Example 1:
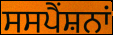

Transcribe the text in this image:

ਸਸਪੈਂਸ਼ਨਾਂ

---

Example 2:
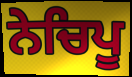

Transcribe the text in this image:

ਨੇਚਿਪੂ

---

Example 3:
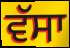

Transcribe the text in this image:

ਵੱਸਾ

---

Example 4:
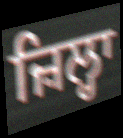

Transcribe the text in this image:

ਜ਼ਿਲ੍ਹ੍ਹਾ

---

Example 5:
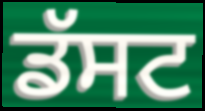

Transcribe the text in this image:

ਡੱਸਟ